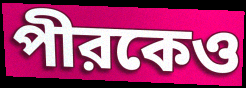
পীরকেও